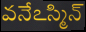
వనేఽస్మిన్